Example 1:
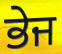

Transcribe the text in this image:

ਭੇਜ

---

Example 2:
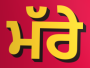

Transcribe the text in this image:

ਮੱਰੇ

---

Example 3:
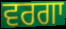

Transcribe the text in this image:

ਵਰਗਾ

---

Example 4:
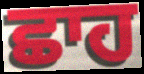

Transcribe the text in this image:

ਛਾਹ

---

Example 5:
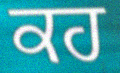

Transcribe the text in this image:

ਕਹ